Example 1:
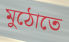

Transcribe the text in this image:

মুঠোতে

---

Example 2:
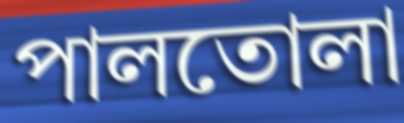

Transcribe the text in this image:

পালতোলা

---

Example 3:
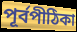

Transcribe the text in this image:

পূর্বপীঠিকা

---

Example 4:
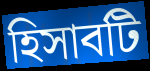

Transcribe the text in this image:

হিসাবটি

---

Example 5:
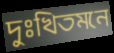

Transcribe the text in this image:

দুঃখিতমনে